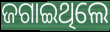
ଜଗାଇଥିଲେ